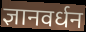
ज्ञानवर्धन